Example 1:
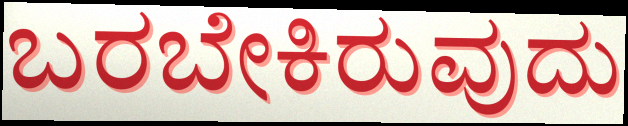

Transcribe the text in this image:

ಬರಬೇಕಿರುವುದು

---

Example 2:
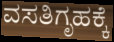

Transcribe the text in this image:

ವಸತಿಗೃಹಕ್ಕೆ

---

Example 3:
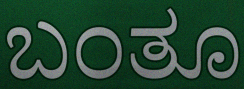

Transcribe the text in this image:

ಬಂತೂ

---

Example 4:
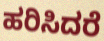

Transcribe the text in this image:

ಹರಿಸಿದರೆ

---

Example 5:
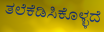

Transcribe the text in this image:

ತಲೆಕೆಡಿಸಿಕೊಳ್ಳದೆ